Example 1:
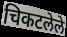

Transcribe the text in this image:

चिकटलेले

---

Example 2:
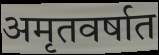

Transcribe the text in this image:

अमृतवर्षात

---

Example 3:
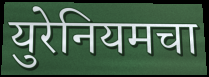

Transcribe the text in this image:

युरेनियमचा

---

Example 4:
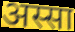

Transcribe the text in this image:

अस्सा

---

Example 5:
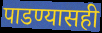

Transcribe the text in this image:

पाडण्यासही